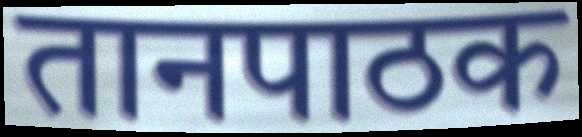
तानपाठक